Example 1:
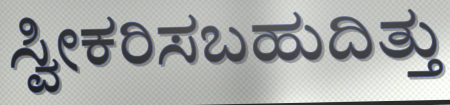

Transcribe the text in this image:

ಸ್ವೀಕರಿಸಬಹುದಿತ್ತು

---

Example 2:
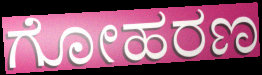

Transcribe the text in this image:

ಗೋಹರಣ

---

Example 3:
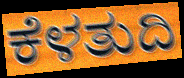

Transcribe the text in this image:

ಕೆಳತುದಿ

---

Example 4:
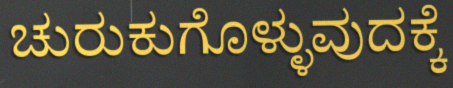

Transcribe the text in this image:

ಚುರುಕುಗೊಳ್ಳುವುದಕ್ಕೆ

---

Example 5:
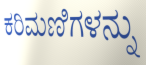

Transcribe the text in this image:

ಕರಿಮಣಿಗಳನ್ನು